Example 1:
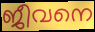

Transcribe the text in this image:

ജീവനെ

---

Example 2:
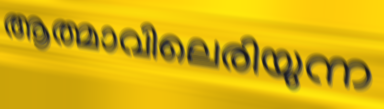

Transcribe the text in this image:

ആത്മാവിലെരിയുന്ന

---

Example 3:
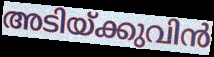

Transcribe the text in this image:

അടിയ്ക്കുവിൻ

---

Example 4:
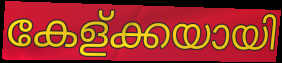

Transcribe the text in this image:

കേള്ക്കയായി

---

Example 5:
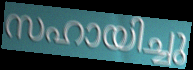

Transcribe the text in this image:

സഹായിച്ചു